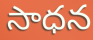
సాధన